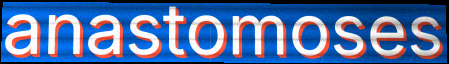
anastomoses